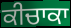
ਕੀਚਾਕਾ